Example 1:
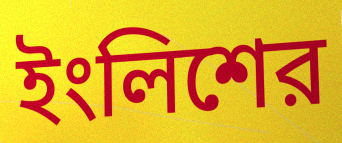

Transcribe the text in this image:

ইংলিশের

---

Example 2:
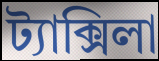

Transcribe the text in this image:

ট্যাক্সিলা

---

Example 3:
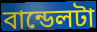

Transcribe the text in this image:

বান্ডেলটা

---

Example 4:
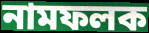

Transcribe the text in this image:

নামফলক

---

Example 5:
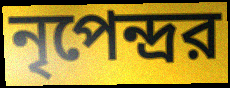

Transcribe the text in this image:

নৃপেন্দ্রর